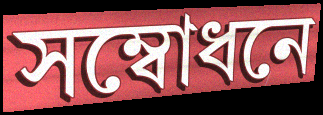
সম্বোধনে